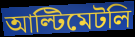
আল্টিমেটলি